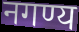
नगण्य